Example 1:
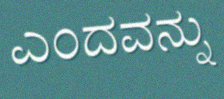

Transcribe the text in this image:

ಎಂದವನ್ನು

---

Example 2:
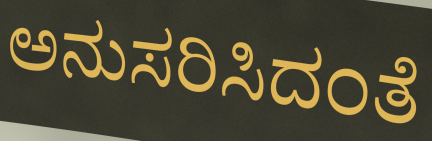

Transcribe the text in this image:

ಅನುಸರಿಸಿದಂತೆ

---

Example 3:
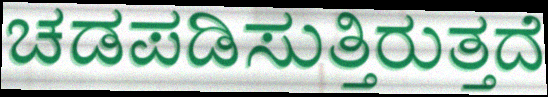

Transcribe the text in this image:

ಚಡಪಡಿಸುತ್ತಿರುತ್ತದೆ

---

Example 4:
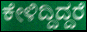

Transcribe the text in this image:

ಕೇಳಿದ್ದಿದ್ದರೆ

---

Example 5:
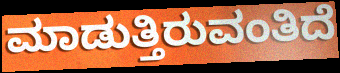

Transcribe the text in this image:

ಮಾಡುತ್ತಿರುವಂತಿದೆ